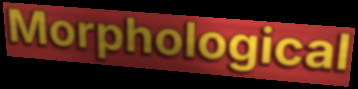
Morphological